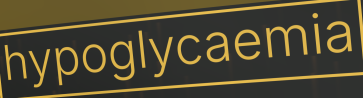
hypoglycaemia